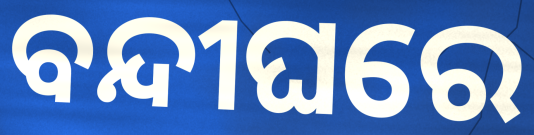
ବନ୍ଦୀଘରେ